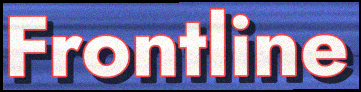
Frontline